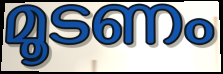
മൂടണം